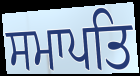
ਸਮਾਪਤਿ